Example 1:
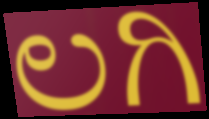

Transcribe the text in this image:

ಲಗಿ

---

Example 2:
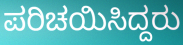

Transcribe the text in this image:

ಪರಿಚಯಿಸಿದ್ದರು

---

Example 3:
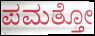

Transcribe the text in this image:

ಪಮತ್ತೋ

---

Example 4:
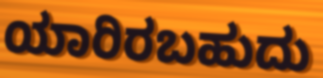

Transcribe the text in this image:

ಯಾರಿರಬಹುದು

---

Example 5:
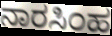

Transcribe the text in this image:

ನಾರಸಿಂಹ